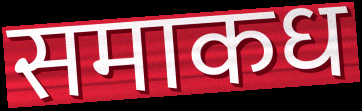
समाकध